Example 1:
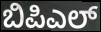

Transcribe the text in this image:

ಬಿಪಿಎಲ್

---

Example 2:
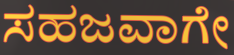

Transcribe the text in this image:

ಸಹಜವಾಗೇ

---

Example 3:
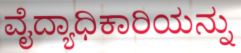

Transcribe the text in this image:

ವೈದ್ಯಾಧಿಕಾರಿಯನ್ನು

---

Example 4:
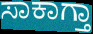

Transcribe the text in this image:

ಸಾಕಾಗ್ತಾ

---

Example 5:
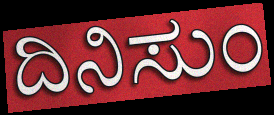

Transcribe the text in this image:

ದಿನಿಸುಂ